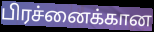
பிரச்னைக்கான